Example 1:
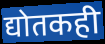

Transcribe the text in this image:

द्योतकही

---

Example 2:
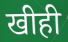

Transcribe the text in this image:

खीही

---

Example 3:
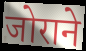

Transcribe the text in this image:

जोराने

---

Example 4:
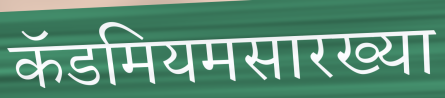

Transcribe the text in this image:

कॅडमियमसारख्या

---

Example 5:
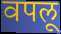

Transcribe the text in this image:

वपलू